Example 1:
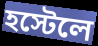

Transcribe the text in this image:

হস্টেলে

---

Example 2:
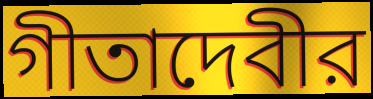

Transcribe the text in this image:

গীতাদেবীর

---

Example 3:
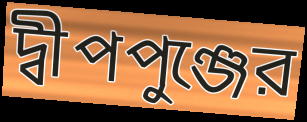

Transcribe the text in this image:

দ্বীপপুঞ্জের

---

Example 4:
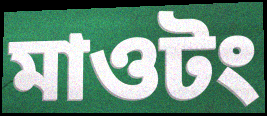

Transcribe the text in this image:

মাওটং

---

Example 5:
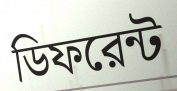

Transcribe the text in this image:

ডিফরেন্ট